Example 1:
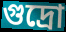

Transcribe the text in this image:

গুদ্ৰো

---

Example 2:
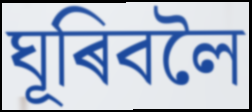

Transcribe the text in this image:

ঘূৰিবলৈ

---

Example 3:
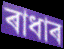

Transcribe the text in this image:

ৰাধাৰ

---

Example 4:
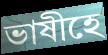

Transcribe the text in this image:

ভাষীহে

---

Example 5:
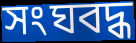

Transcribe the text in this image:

সংঘবদ্ধ